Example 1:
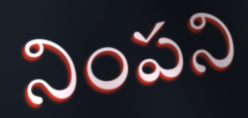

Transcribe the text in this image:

నింపని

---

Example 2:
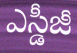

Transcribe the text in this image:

ఎస్డీజీ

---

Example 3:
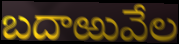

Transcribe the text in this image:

బదాఱువేల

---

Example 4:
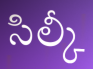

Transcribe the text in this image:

సిల్కీ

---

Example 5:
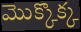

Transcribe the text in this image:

మొక్కొక్క